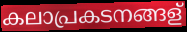
കലാപ്രകടനങ്ങള്